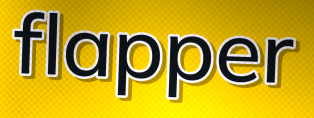
flapper